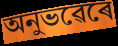
অনুভৱেৰে